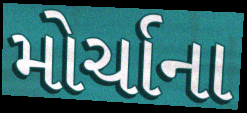
મોર્ચાના